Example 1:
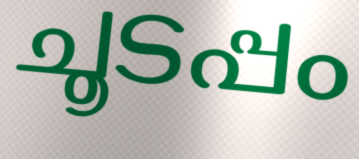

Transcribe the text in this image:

ചൂടപ്പം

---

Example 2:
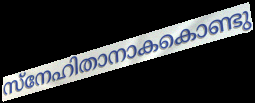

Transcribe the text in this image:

സ്നേഹിതാനാകകൊണ്ടു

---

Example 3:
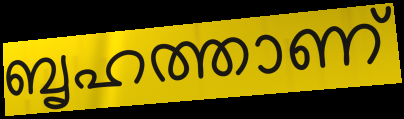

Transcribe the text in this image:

ബൃഹത്താണ്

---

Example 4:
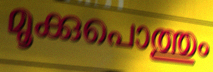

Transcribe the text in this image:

മൂക്കുപൊത്തും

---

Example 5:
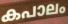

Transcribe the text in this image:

കപാലം